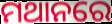
ମଥାନରେ